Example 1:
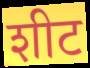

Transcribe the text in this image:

शीट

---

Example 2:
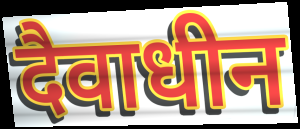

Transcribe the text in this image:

दैवाधीन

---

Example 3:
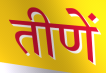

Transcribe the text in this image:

तीणें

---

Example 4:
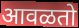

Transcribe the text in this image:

आवळतो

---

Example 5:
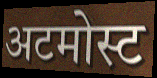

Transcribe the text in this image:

अटमोस्ट